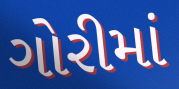
ગોરીમાં